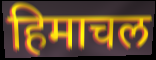
हिमाचल